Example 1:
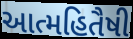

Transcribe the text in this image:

આત્મહિતૈષી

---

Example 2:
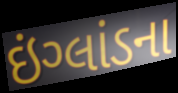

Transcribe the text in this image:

ઇંગ્લાંડના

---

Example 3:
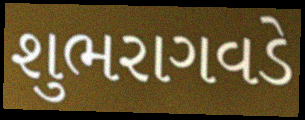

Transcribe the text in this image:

શુભરાગવડે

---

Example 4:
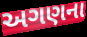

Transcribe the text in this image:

અગણના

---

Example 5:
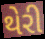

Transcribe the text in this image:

થેરી